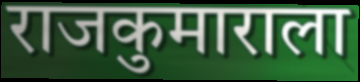
राजकुमाराला